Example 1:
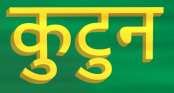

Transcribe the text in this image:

कुटुन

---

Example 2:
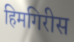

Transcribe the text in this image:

हिमगिरीस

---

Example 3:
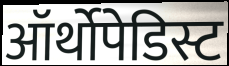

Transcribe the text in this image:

ऑर्थोपेडिस्ट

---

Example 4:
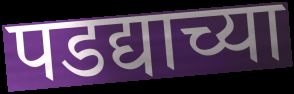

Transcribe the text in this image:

पडद्याच्या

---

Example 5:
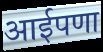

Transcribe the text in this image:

आईपणा